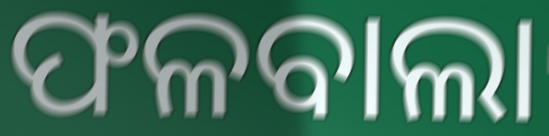
ଫଳବାଲା